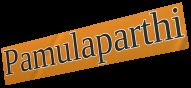
Pamulaparthi